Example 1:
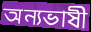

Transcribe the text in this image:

অন্যভাষী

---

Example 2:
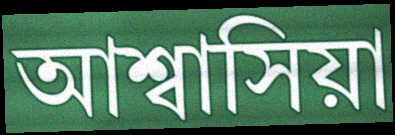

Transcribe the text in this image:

আশ্বাসিয়া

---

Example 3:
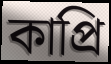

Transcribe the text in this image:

কাপ্রি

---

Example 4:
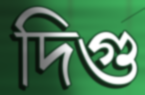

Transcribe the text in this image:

দিগু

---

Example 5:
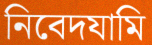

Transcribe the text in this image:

নিবেদযামি